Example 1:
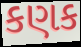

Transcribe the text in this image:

કણક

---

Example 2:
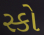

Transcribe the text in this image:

સ્કો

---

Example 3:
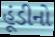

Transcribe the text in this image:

હૂંડીનો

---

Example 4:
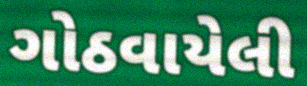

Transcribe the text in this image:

ગોઠવાયેલી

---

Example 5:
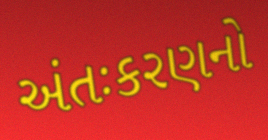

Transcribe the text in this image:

અંતઃકરણનો